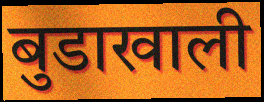
बुडाखाली